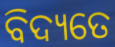
ବିଦ୍ୟତେ